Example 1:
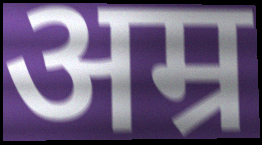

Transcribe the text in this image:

अम्र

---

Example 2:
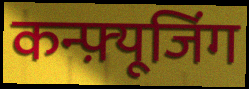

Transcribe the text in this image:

कन्फ़्यूजिंग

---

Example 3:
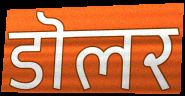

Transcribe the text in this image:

डॊलर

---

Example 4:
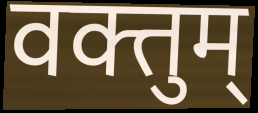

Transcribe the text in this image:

वक्तुम्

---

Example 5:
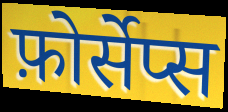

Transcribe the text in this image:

फ़ोर्सेप्स